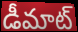
డీమాట్